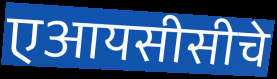
एआयसीसीचे